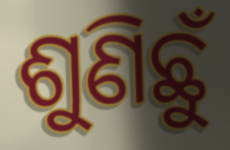
ଶୁଣିଛୁଁ